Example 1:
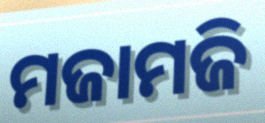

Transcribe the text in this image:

ମଜାମଜି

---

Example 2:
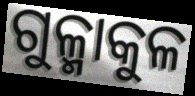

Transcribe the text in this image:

ଗୁଳ୍ମାକୁଳ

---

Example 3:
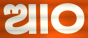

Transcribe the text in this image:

ଆଠ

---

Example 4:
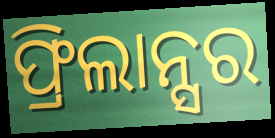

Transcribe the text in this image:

ଫ୍ରିଲାନ୍ସର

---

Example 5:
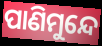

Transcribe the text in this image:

ପାଣିମୁନ୍ଦେ